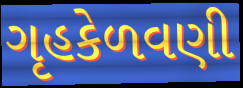
ગૃહકેળવણી